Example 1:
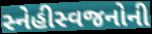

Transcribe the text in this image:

સ્નેહીસ્વજનોની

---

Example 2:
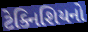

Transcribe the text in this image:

ટેક્નિશિયનો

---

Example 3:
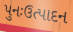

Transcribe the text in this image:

પુનઃઉત્પાદન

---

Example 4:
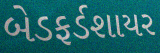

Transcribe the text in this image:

બેડફર્ડશાયર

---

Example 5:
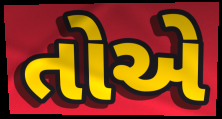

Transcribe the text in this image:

તોએ